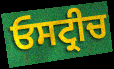
ਓਸਟ੍ਰੀਚ